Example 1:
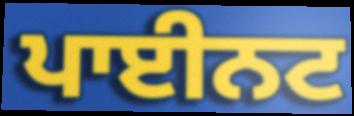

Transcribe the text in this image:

ਪਾਈਨਟ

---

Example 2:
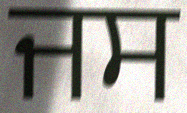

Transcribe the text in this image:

ਜਸ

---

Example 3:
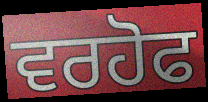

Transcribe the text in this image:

ਵਰਹੋਫ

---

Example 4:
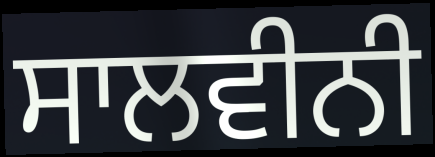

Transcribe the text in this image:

ਸਾਲਵੀਨੀ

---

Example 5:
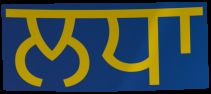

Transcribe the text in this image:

ਲਧਾ